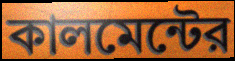
কালমেন্টের